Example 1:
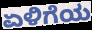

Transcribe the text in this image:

ಏಳಿಗೆಯ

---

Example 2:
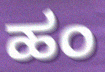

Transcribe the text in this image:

ಹಂ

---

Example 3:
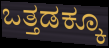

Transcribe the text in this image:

ಒತ್ತಡಕ್ಕೂ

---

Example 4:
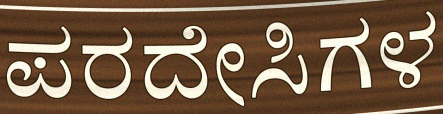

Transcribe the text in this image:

ಪರದೇಸಿಗಳ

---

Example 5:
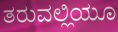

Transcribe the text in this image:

ತರುವಲ್ಲಿಯೂ